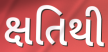
ક્ષતિથી